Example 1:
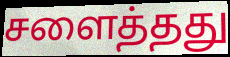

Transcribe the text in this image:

சளைத்தது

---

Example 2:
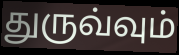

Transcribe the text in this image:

துருவ்வும்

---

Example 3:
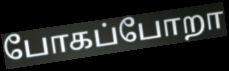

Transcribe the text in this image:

போகப்போறா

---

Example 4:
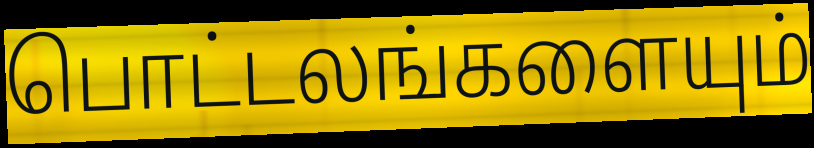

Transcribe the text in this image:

பொட்டலங்களையும்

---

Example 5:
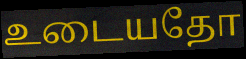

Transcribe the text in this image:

உடையதோ